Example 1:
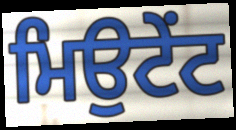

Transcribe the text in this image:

ਮਿਉਟੇਂਟ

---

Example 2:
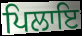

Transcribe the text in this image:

ਪਿਲਾਇ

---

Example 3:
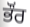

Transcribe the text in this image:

ਭੌਂਰ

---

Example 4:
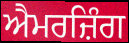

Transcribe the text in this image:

ਐਮਰਜ਼ਿੰਗ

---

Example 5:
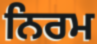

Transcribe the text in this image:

ਨਿਰਮ